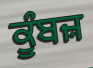
ਕੂੰਬਜ਼